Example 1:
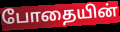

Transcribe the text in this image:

போதையின்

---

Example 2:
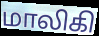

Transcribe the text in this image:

மாலிகி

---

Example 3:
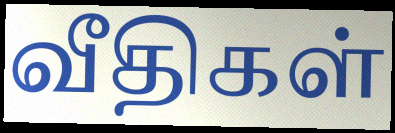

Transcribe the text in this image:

வீதிகள்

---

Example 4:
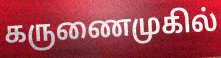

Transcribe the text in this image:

கருணைமுகில்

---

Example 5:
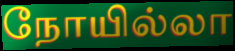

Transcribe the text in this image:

நோயில்லா